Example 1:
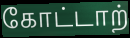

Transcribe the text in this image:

கோட்டாற்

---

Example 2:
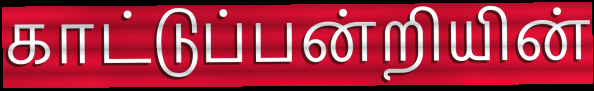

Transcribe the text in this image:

காட்டுப்பன்றியின்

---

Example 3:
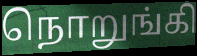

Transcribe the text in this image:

நொறுங்கி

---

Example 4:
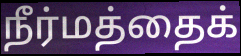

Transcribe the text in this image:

நீர்மத்தைக்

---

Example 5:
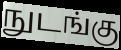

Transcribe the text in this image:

நுடங்கு